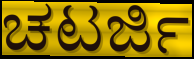
ಚಟರ್ಜಿ